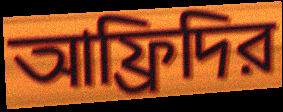
আফ্রিদির